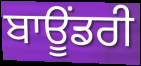
ਬਾਊਂਡਰੀ